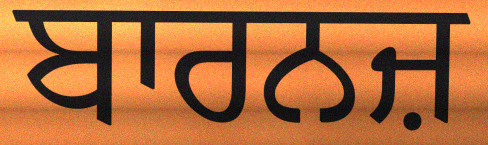
ਬਾਰਨਜ਼